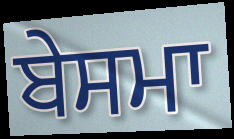
ਬੇਸਮਾ